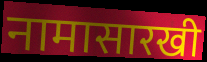
नामासारखी